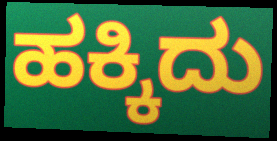
ಹಕ್ಕಿದು